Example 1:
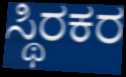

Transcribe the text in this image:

ಸ್ಥಿರಕರ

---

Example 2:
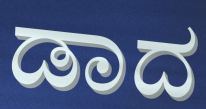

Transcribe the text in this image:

ಡಾದ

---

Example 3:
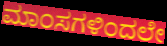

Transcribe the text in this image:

ಮಾಂಸಗಳಿಂದಲೇ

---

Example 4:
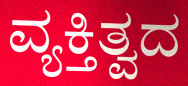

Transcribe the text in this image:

ವ್ಯಕ್ತಿತ್ವದ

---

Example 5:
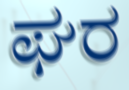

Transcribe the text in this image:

ಘರ